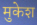
मुकेश